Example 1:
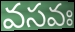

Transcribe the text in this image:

వసవః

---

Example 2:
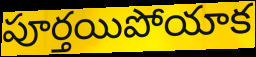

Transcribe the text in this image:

పూర్తయిపోయాక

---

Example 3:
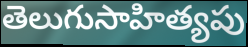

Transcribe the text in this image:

తెలుగుసాహిత్యపు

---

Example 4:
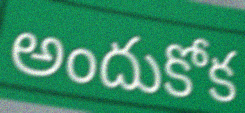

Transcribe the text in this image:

అందుకోక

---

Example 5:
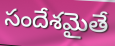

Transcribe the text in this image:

సందేశమైతే